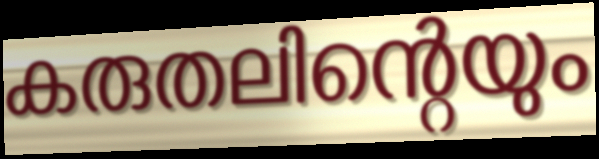
കരുതലിന്റെയും